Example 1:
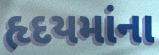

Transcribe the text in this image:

હૃદયમાંના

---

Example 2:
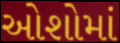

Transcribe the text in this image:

ઓશોમાં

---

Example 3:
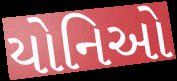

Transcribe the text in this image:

યોનિઓ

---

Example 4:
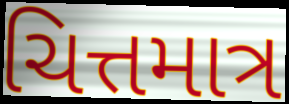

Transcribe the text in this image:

ચિત્તમાત્ર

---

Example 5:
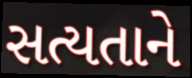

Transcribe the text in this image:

સત્યતાને